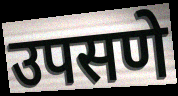
उपसणे